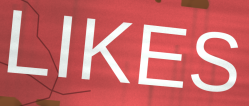
LIKES